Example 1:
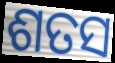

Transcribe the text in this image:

ଶତସ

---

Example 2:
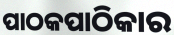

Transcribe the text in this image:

ପାଠକପାଠିକାର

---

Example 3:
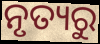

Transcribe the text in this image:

ନୃତ୍ୟରୁ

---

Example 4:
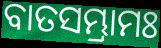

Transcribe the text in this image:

ବାତସମ୍ଭ୍ରାମଃ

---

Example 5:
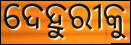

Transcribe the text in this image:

ଦେହୁରୀକୁ